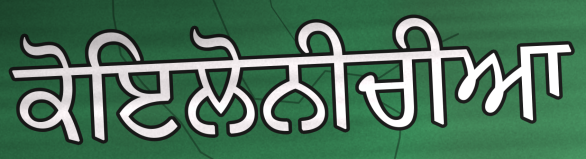
ਕੋਇਲੋਨੀਚੀਆ